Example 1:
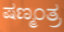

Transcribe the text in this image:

ಷಣ್ಮಂತ್ರ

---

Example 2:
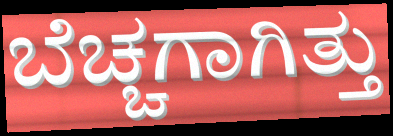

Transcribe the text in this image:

ಬೆಚ್ಚಗಾಗಿತ್ತು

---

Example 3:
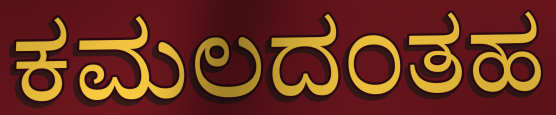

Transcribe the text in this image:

ಕಮಲದಂತಹ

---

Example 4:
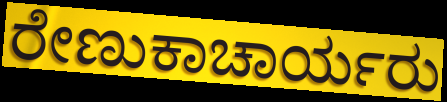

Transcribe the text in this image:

ರೇಣುಕಾಚಾರ್ಯರು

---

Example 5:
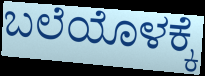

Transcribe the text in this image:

ಬಲೆಯೊಳಕ್ಕೆ